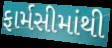
ફાર્મસીમાંથી